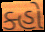
ક્હો